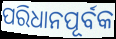
ପରିଧାନପୂର୍ବକ